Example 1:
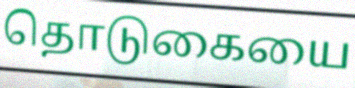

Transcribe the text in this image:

தொடுகையை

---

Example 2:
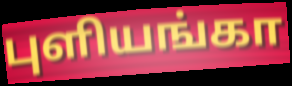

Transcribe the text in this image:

புளியங்கா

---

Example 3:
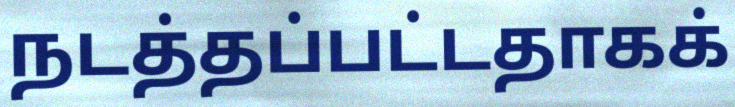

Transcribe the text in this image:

நடத்தப்பட்டதாகக்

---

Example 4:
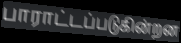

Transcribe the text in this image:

பாராட்டப்படுகின்றன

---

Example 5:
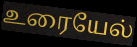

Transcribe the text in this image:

உரையேல்